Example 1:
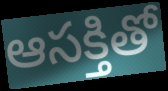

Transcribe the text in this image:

ఆసక్తితో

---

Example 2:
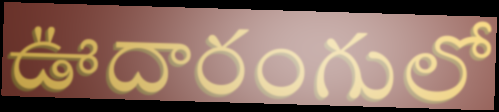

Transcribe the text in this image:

ఊదారంగులో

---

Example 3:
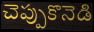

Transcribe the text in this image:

చెప్పుకొనెడి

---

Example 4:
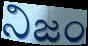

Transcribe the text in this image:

నిజం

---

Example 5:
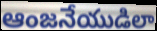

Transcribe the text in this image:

ఆంజనేయుడిలా